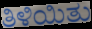
ತಿಳಿಯಿತು